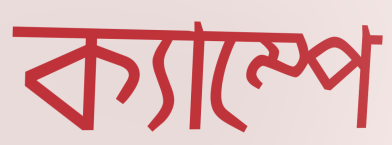
ক্যাম্পে